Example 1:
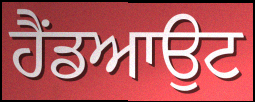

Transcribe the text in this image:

ਹੈਂਡਆਉਟ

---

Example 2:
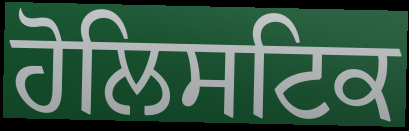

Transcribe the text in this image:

ਹੋਲਿਸਟਿਕ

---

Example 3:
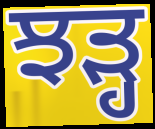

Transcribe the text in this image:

ਝੜ੍ਹ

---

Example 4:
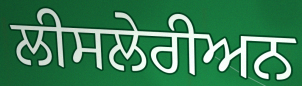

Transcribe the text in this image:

ਲੀਸਲੇਰੀਅਨ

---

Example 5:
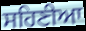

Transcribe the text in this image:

ਸਹਿਣੀਆ